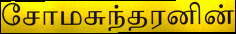
சோமசுந்தரனின்